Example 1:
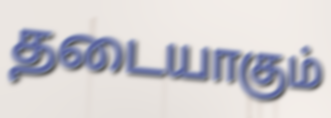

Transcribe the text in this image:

தடையாகும்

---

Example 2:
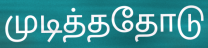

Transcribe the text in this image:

முடித்ததோடு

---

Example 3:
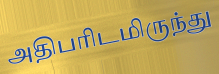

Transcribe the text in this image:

அதிபரிடமிருந்து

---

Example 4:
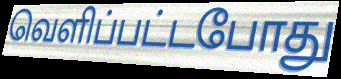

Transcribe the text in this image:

வெளிப்பட்டபோது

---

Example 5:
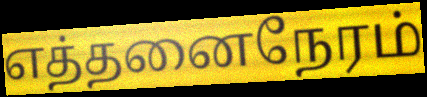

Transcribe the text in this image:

எத்தனைநேரம்